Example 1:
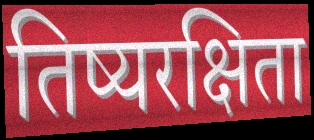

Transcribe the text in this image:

तिष्यरक्षिता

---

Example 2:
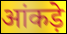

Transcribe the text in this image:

आंकड़े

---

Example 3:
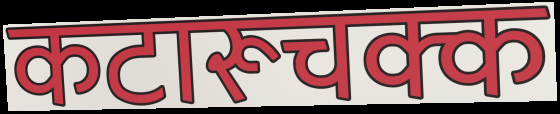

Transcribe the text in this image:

कटारूचक्क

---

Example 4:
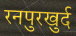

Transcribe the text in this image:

रनपुरखुर्द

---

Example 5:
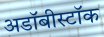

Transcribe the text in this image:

अडॉबीस्टॉक